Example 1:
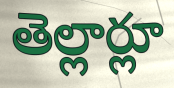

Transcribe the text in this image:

తెల్లార్లూ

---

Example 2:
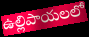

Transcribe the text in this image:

ఉల్లిపాయలలో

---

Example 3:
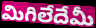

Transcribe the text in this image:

మిగిలేదేమీ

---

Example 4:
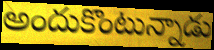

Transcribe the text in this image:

అందుకొంటున్నాడు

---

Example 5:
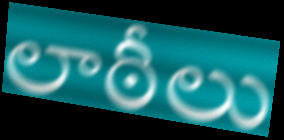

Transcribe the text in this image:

లాఠీలు